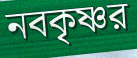
নবকৃষ্ণর